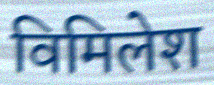
विमिलेश